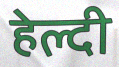
हेल्‍दी